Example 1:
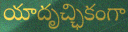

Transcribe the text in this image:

యాదృచ్ఛికంగా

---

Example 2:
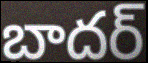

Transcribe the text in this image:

బాదర్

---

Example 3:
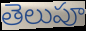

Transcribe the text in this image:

తెలుపూ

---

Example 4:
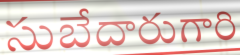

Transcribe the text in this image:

సుబేదారుగారి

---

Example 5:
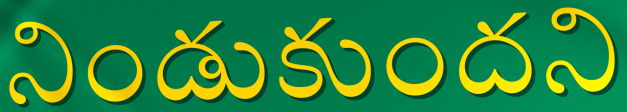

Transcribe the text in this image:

నిండుకుందని